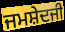
ਜਮਸ਼ੇਦਜੀ